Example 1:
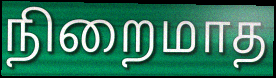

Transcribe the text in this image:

நிறைமாத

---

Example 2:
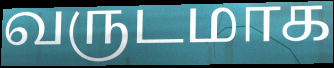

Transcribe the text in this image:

வருடமாக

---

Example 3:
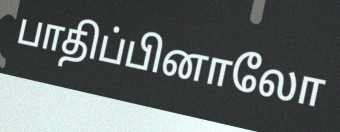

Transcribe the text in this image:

பாதிப்பினாலோ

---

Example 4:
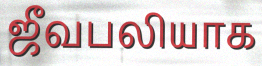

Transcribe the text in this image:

ஜீவபலியாக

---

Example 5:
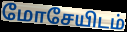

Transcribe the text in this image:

மோசேயிடம்